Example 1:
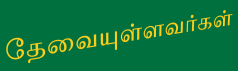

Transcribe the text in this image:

தேவையுள்ளவர்கள்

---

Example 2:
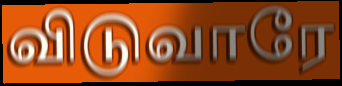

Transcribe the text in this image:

விடுவாரே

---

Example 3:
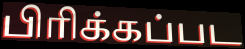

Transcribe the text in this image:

பிரிக்கப்பட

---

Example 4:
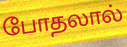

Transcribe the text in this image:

போதலால்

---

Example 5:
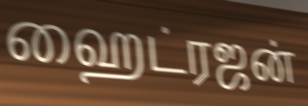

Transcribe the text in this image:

ஹைட்ரஜன்